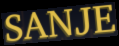
SANJE